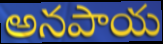
అనపాయ